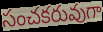
సంచకరువుగా